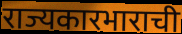
राज्यकारभाराची